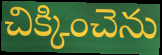
చిక్కించెను